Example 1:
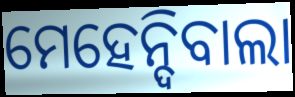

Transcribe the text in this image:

ମେହେନ୍ଦିବାଲା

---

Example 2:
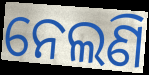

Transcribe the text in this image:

ନେଲଣି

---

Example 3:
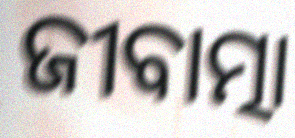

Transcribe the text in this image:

ଜୀବାତ୍ମା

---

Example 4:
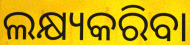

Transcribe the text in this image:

ଲକ୍ଷ୍ୟକରିବା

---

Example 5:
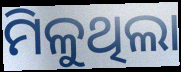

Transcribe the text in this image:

ମିଳୁଥିଲା